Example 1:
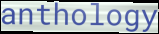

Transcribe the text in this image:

anthology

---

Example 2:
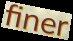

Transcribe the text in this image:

finer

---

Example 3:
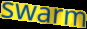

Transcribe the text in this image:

swarm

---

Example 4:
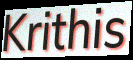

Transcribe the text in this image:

Krithis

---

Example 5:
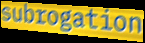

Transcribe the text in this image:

subrogation